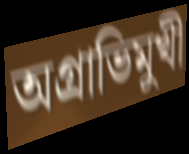
অগ্রাভিমুখী